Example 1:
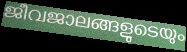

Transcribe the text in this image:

ജീവജാലങ്ങളുടെയും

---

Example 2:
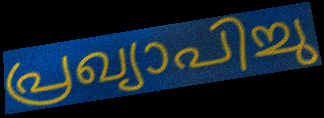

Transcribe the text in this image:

പ്രഖ്യാപിച്ചു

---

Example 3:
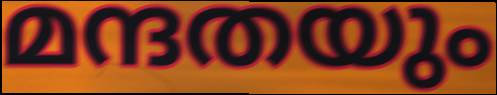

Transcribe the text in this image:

മന്ദതയും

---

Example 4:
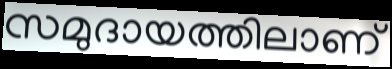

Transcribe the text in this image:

സമുദായത്തിലാണ്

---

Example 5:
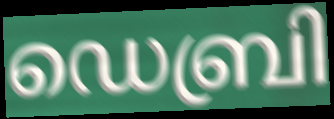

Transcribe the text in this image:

ഡെബ്രി